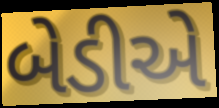
બેડીએ